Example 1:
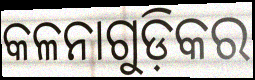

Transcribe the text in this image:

କଳନାଗୁଡ଼ିକର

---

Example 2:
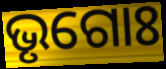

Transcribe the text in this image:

ଭୃଗୋଃ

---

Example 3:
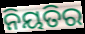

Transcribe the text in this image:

ନିୟତିର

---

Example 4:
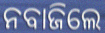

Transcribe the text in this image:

ନବାଜିଲେ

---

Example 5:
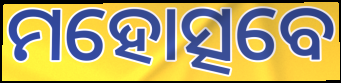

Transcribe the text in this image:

ମହୋତ୍ସବେ